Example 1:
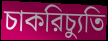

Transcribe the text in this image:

চাকরিচ্যুতি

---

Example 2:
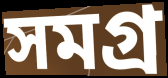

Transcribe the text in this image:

সমগ্র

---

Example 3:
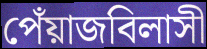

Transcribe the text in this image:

পেঁয়াজবিলাসী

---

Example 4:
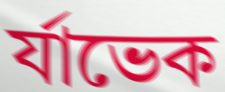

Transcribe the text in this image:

র্যাভেক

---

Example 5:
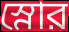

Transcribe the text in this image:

স্নোর